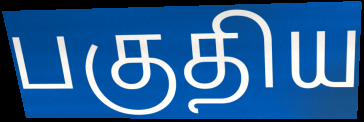
பகுதிய